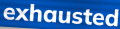
exhausted